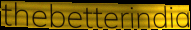
thebetterindia